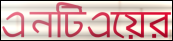
এনটিএয়ের